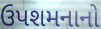
ઉપશમનાનો